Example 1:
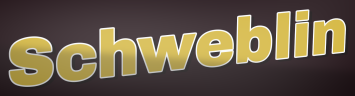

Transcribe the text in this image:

Schweblin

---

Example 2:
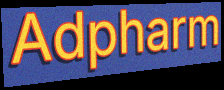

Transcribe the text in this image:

Adpharm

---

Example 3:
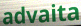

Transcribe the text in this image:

advaita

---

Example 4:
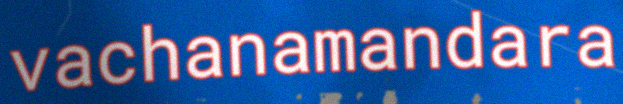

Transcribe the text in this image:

vachanamandara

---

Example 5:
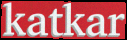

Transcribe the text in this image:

katkar